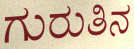
ಗುರುತಿನ